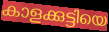
കാളക്കുട്ടിയെ